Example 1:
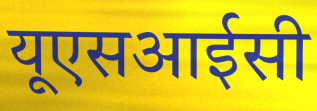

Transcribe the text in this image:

यूएसआईसी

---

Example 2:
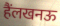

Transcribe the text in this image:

हैंलखनऊ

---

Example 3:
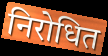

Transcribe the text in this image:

निरोधित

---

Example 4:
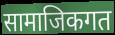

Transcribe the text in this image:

सामाजिकगत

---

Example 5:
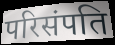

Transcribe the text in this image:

परिसंपति